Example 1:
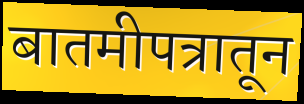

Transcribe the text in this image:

बातमीपत्रातून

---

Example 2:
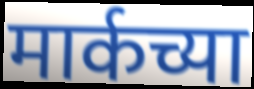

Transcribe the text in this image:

मार्कच्या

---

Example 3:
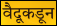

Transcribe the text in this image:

वैदूकडून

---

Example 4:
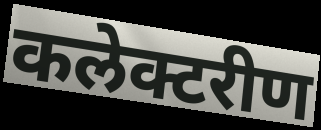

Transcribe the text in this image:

कलेक्टरीण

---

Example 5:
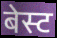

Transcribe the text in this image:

बेस्ट